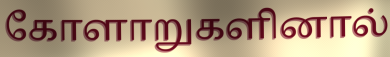
கோளாறுகளினால்